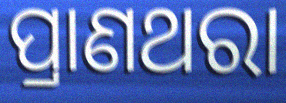
ପ୍ରାଣଥରା